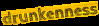
drunkenness